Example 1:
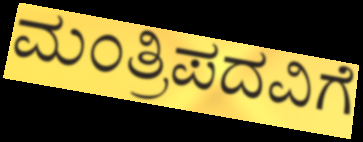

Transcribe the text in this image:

ಮಂತ್ರಿಪದವಿಗೆ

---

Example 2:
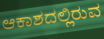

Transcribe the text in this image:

ಆಕಾಶದಲ್ಲಿರುವ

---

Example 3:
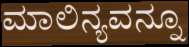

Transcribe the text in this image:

ಮಾಲಿನ್ಯವನ್ನೂ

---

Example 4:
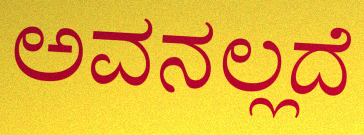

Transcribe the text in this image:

ಅವನಲ್ಲದೆ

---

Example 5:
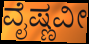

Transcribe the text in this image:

ವೈಷ್ಣವೀ